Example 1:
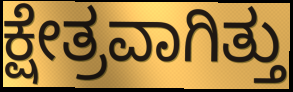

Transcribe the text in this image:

ಕ್ಷೇತ್ರವಾಗಿತ್ತು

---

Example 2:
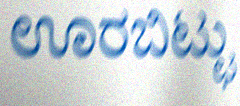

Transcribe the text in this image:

ಊರಬಿಟ್ಟು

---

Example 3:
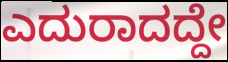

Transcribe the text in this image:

ಎದುರಾದದ್ದೇ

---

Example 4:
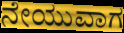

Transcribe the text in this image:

ನೇಯುವಾಗ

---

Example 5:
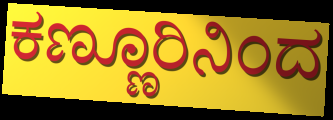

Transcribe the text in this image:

ಕಣ್ಣೂರಿನಿಂದ